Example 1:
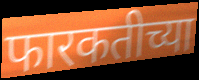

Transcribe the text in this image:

फारकतीच्या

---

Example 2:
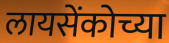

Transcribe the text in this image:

लायसेंकोच्या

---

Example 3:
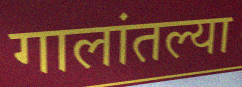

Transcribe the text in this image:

गालांतल्या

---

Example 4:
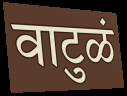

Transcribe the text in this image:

वाटुळं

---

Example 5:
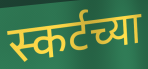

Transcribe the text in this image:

स्कर्टच्या